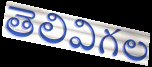
తెలివిగల